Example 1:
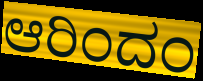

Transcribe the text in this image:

ಆರಿಂದಂ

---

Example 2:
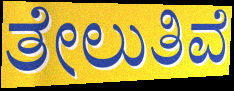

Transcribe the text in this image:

ತೇಲುತಿವೆ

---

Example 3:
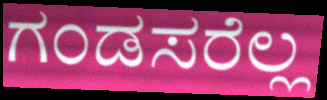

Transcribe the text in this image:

ಗಂಡಸರೆಲ್ಲ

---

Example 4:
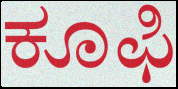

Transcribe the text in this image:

ಕೂಫಿ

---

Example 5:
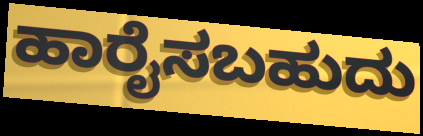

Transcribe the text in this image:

ಹಾರೈಸಬಹುದು